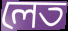
লেত